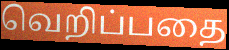
வெறிப்பதை